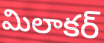
మిలాకర్